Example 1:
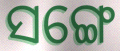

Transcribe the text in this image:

ସଙ୍ଗେ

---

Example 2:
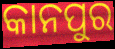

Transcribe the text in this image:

କାନପୁର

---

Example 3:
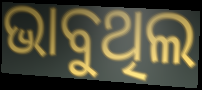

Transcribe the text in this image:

ଭାବୁଥିଲ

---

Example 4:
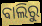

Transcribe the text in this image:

ବାଲିରୁ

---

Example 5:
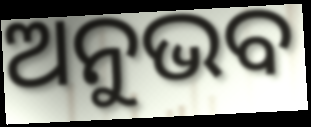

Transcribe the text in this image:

ଅନୁଭବ